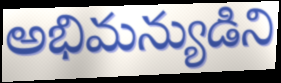
అభిమన్యుడిని